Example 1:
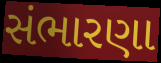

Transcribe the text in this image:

સંભારણા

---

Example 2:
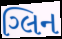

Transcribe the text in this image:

ગ્લિન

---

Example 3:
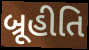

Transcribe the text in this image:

બ્રૂહીતિ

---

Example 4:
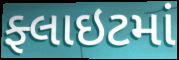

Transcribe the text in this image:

ફ્લાઇટમાં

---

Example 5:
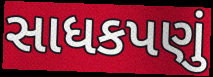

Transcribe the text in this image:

સાધકપણું